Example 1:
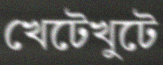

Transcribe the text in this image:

খেটেখুটে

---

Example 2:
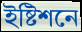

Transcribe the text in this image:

ইষ্টিশনে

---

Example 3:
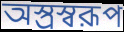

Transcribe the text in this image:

অস্ত্রস্বরূপ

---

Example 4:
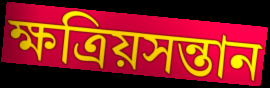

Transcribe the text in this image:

ক্ষত্রিয়সন্তান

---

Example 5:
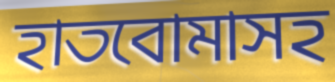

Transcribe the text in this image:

হাতবোমাসহ